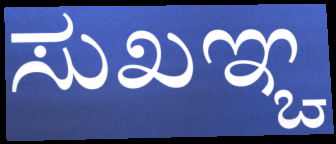
ಸುಖಞ್ಚ